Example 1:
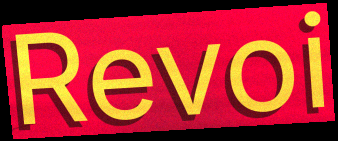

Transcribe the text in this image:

Revoi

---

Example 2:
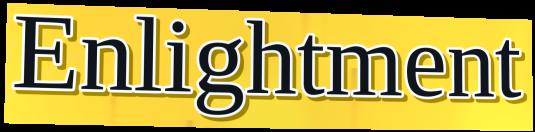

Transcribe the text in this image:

Enlightment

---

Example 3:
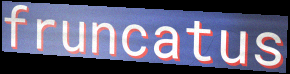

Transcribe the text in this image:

fruncatus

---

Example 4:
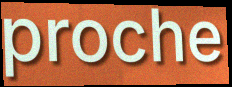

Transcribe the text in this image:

proche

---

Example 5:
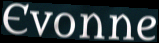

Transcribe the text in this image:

Evonne